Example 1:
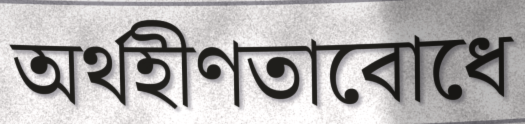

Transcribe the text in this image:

অর্থহীণতাবোধে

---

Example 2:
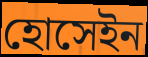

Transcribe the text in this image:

হোসেইন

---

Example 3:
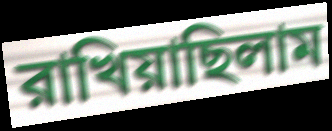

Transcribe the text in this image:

রাখিয়াছিলাম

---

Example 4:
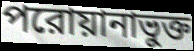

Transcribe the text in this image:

পরোয়ানাভুক্ত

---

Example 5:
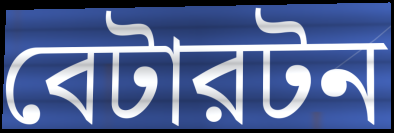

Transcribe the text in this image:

বেটারটন